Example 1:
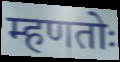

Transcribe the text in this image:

म्हणतोः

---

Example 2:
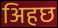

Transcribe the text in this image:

अिहछ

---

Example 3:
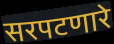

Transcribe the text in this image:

सरपटणारे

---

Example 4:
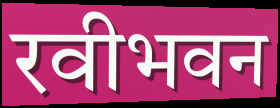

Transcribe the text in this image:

रवीभवन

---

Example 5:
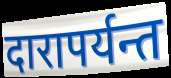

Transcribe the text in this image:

दारापर्यन्त